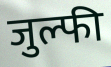
जुल्फी